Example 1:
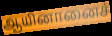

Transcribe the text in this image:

ஆயினானைச்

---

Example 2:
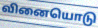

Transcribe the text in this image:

வினையொடு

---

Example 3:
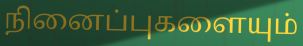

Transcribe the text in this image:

நினைப்புகளையும்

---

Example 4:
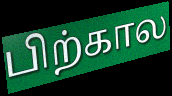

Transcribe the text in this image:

பிற்கால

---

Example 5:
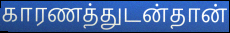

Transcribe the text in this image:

காரணத்துடன்தான்